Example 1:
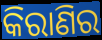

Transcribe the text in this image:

କିରାଣିର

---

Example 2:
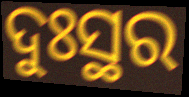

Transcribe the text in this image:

ଦୁଃସ୍ଥର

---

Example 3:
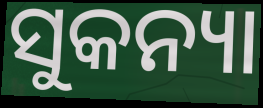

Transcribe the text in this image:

ସୁକନ୍ୟା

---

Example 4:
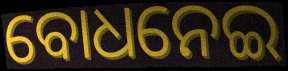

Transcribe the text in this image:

ବୋଧନେଇ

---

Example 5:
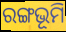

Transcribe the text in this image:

ରଙ୍ଗଭୂମି